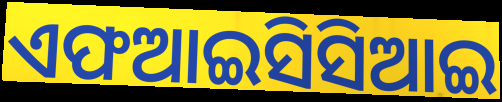
ଏଫଆଇସିସିଆଇ